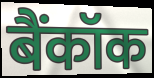
बैंकॉक